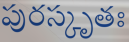
పురస్కృతః